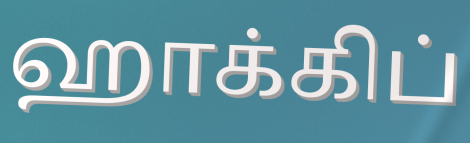
ஹாக்கிப்